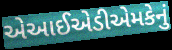
એઆઈએડીએમકેનું